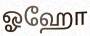
ஓஹோ